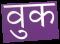
वुक